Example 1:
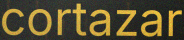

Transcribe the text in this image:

cortazar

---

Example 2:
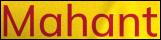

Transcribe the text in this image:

Mahant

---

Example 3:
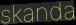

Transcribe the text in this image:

skanda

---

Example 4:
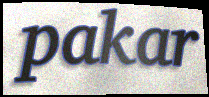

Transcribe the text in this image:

pakar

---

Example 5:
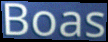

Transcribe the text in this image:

Boas